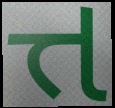
ત્ત